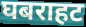
घबराहट